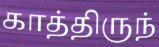
காத்திருந்